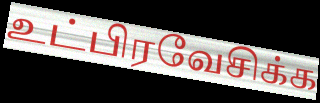
உட்பிரவேசிக்க